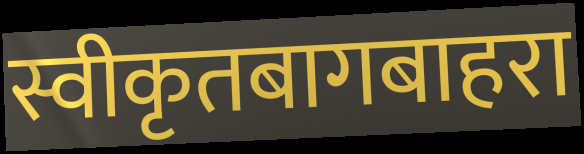
स्वीकृतबागबाहरा